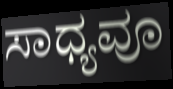
ಸಾಧ್ಯವೂ